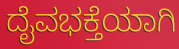
ದೈವಭಕ್ತೆಯಾಗಿ